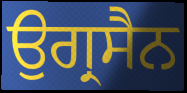
ਉਗ੍ਰਸੈਨ